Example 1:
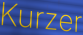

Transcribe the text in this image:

Kurzer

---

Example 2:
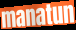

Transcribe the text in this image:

manatun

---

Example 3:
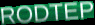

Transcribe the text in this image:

RODTEP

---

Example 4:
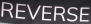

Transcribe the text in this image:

REVERSE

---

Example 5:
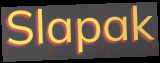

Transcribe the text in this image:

Slapak